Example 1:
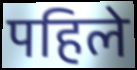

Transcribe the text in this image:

पहिले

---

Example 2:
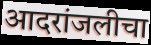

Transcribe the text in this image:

आदरांजलीचा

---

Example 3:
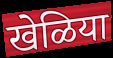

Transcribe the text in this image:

खेळिया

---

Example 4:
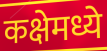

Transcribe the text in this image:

कक्षेमध्ये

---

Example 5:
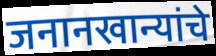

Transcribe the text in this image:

जनानखान्यांचे